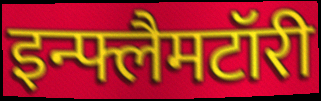
इन्फ्लैमटॉरी